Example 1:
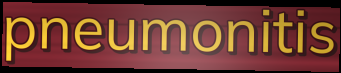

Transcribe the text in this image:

pneumonitis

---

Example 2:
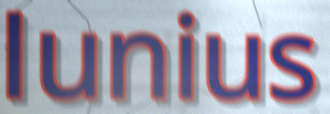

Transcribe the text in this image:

Iunius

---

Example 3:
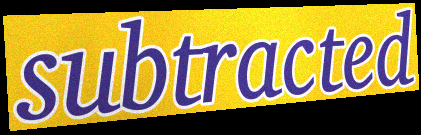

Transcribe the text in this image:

subtracted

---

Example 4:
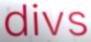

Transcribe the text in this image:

divs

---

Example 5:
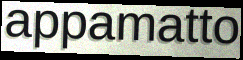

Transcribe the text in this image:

appamatto